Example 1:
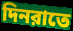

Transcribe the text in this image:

দিনরাতে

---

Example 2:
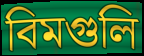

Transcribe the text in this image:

বিমগুলি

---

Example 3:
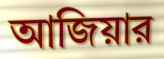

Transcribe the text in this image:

আজিয়ার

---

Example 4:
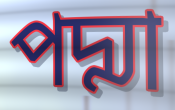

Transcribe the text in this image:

পদ্মা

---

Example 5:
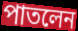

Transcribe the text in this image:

পাতলেন